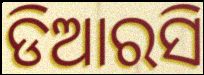
ଡିଆରସି